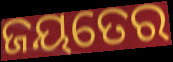
ଜୟତେର